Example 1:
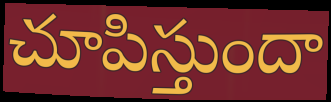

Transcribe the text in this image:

చూపిస్తుందా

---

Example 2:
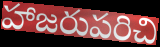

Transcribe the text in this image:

హాజరుపరిచి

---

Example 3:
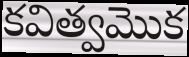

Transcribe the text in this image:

కవిత్వమొక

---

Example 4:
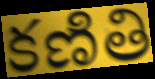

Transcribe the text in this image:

కణితి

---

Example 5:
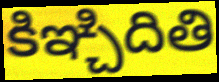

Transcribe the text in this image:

కిఞ్చిదితి